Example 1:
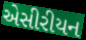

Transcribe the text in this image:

એસીરીયન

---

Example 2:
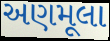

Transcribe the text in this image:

અણમૂલા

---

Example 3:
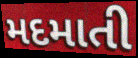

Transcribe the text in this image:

મદમાતી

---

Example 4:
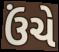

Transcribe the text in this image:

ઉંચે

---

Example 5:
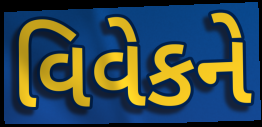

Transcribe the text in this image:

વિવેકને